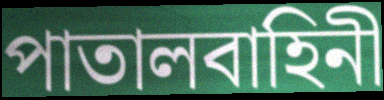
পাতালবাহিনী